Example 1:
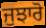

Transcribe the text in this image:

ਜੁਝਾਰੋ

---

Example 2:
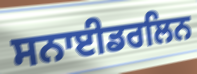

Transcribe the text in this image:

ਸਨਾਈਡਰਲਿਨ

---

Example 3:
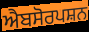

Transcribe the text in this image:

ਐਬਸੋਰਪਸ਼ਨ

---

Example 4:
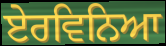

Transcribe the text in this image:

ਏਰਵਿਨਿਆ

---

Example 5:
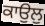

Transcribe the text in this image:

ਕਾਉਲੁ